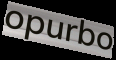
opurbo